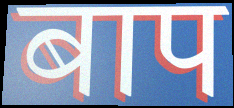
बाप